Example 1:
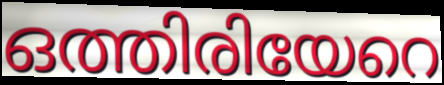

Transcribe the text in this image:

ഒത്തിരിയേറെ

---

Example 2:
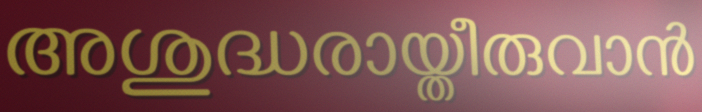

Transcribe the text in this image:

അശുദ്ധരായ്തീരുവാൻ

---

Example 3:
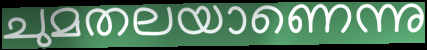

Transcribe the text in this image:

ചുമതലയാണെന്നു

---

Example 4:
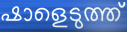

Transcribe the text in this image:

ഷാളെടുത്ത്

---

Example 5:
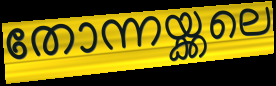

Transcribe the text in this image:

തോന്നയ്ക്കലെ